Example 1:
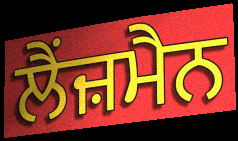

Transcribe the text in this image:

ਲੈਂਜ਼ਮੈਨ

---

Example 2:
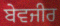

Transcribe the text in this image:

ਬੇਵਜੀਰ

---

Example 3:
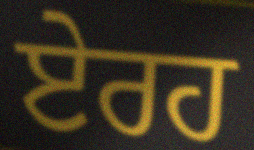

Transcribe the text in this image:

ਏਰਹ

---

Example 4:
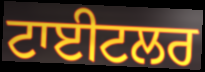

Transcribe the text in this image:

ਟਾਈਟਲਰ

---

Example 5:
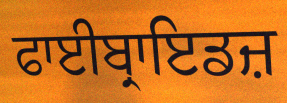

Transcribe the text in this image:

ਫਾਈਬ੍ਰਾਇਡਜ਼